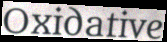
Oxidative